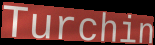
Turchin